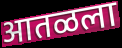
आतळला